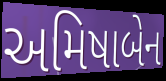
અમિષાબેન